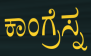
ಕಾಂಗ್ರೆಸ್ನ